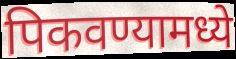
पिकवण्यामध्ये